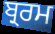
ਬ੍ਰਰਮ